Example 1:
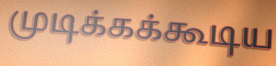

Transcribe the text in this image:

முடிக்கக்கூடிய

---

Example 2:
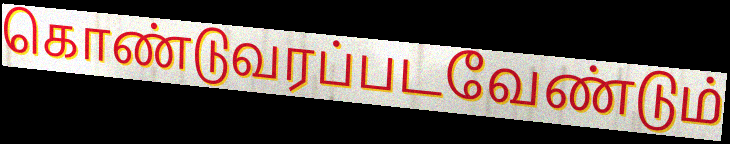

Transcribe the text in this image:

கொண்டுவரப்படவேண்டும்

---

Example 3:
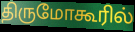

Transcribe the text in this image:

திருமோகூரில்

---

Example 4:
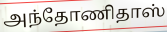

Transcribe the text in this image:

அந்தோணிதாஸ்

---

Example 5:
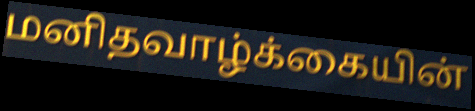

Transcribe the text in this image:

மனிதவாழ்க்கையின்